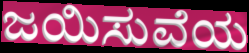
ಜಯಿಸುವೆಯ